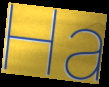
Ha